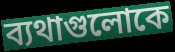
ব্যথাগুলোকে